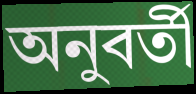
অনুবর্তী